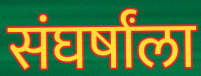
संघर्षांला